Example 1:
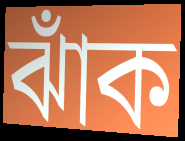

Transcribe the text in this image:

ঝাঁক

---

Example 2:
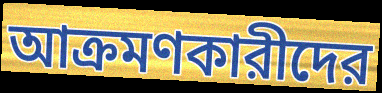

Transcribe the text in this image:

আক্রমণকারীদের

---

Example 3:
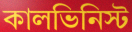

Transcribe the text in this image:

কালভিনিস্ট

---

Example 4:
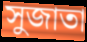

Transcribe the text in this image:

সুজাতা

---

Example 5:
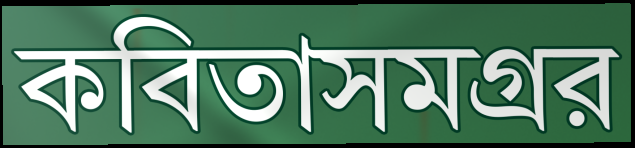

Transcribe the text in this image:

কবিতাসমগ্রর